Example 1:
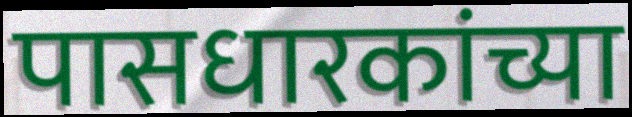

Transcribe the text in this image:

पासधारकांच्या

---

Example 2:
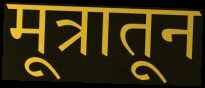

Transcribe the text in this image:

मूत्रातून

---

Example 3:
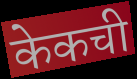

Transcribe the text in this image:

केकची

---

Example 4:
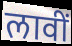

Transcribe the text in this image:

लावीं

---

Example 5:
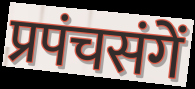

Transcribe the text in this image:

प्रपंचसंगें